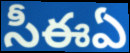
సీఈఏ